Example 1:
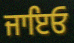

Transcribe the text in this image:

ਜਾਇਓ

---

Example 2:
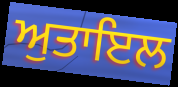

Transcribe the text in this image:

ਅੁਤਾਇਲ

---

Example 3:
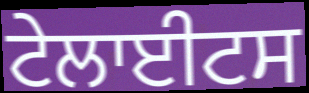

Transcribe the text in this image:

ਟੇਲਾਈਟਸ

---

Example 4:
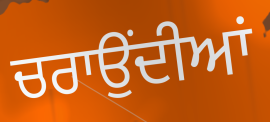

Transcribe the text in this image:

ਚਰਾਉਂਦੀਆਂ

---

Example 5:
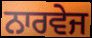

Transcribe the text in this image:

ਨਾਰਵੇਜ